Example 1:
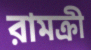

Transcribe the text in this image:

রামক্রী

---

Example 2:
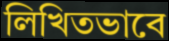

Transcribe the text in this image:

লিখিতভাবে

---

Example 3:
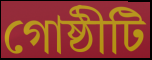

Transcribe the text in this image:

গোষ্ঠীটি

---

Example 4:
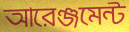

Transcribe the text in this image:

আরেঞ্জমেন্ট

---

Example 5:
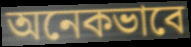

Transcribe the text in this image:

অনেকভাবে